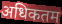
अधिकतम